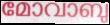
മോവാബു